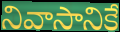
నివాసానికే